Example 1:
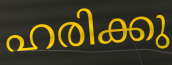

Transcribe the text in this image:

ഹരിക്കു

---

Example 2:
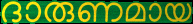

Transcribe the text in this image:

ദാരുണമായ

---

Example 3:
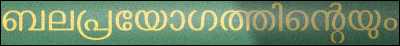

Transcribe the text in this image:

ബലപ്രയോഗത്തിന്റെയും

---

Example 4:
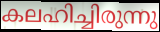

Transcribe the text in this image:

കലഹിച്ചിരുന്നു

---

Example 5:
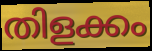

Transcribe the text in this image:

തിളക്കം